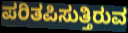
ಪರಿತಪಿಸುತ್ತಿರುವ